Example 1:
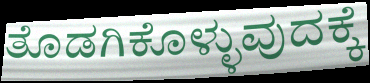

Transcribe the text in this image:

ತೊಡಗಿಕೊಳ್ಳುವುದಕ್ಕೆ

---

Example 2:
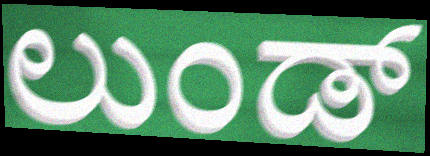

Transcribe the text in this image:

ಲುಂಡ್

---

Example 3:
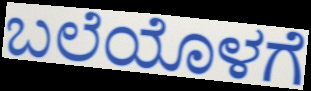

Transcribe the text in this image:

ಬಲೆಯೊಳಗೆ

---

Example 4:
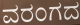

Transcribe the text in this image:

ವರಂಗದ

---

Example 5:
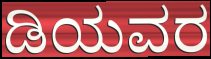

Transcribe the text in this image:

ಡಿಯವರ